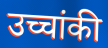
उच्चांकी